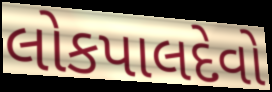
લોકપાલદેવો